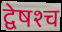
द्वेषश्च